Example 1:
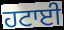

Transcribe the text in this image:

ਹਟਾਈ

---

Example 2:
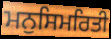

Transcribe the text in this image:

ਮਨੁਸਿਮਰਿਤੀ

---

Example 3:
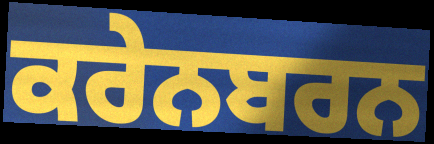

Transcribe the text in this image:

ਕਰੇਨਬਰਨ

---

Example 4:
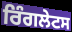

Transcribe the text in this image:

ਰਿੰਗਲੇਟਸ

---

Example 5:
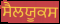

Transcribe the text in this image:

ਸੈਲਯੂਕਸ